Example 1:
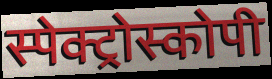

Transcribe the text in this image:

स्पेक्ट्रोस्कोपी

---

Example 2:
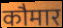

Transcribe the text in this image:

कौमार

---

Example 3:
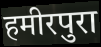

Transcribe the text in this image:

हमीरपुरा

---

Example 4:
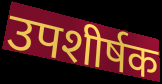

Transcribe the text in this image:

उपशीर्षक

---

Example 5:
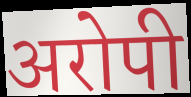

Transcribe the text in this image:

अरोपी